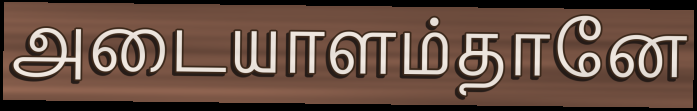
அடையாளம்தானே